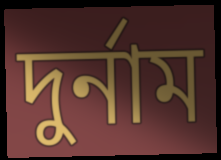
দুৰ্নাম